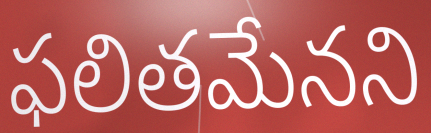
ఫలితమేనని